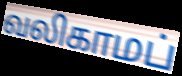
வலிகாமப்